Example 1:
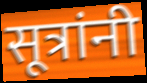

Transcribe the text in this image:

सूत्रांनी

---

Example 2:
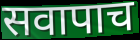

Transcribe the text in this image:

सवापाच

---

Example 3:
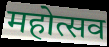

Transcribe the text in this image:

महोत्सव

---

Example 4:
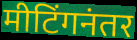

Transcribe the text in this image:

मीटिंगनंतर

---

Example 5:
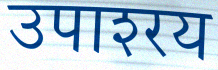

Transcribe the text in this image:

उपाश्रय